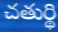
చతుర్థి